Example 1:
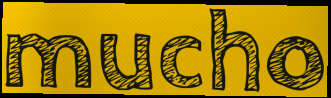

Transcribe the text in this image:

mucho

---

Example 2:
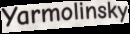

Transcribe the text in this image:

Yarmolinsky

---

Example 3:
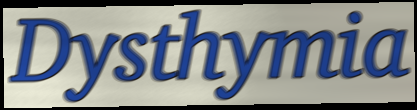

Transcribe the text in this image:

Dysthymia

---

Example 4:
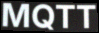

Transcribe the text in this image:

MQTT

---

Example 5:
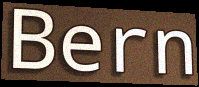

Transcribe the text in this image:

Bern